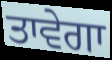
ਤਾਵੇਗਾ